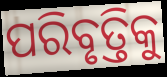
ପରିବୃତ୍ତିକୁ